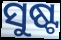
ସୁଷ୍ଟ